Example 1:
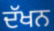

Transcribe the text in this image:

ਦੱਖਨ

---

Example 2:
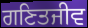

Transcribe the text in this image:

ਗਣਿਤਜੀਵ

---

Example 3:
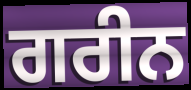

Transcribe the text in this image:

ਗਰੀਨ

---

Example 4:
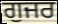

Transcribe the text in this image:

ਗੁਜਰ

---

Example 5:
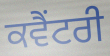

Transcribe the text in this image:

ਕਵੈਂਟਰੀ